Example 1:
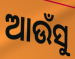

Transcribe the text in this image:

ଆଉଁସୁ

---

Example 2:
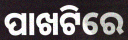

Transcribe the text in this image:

ପାଖଟିରେ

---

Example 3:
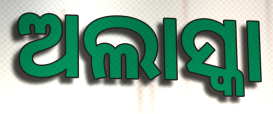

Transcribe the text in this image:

ଅଲାସ୍କା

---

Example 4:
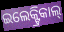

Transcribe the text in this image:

ଇଲେକ୍ଟ୍ରିକାଲ୍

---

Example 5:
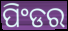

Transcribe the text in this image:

ପିଂଡର